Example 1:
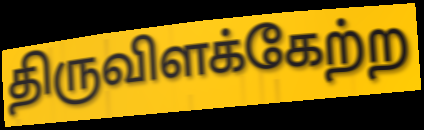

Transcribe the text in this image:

திருவிளக்கேற்ற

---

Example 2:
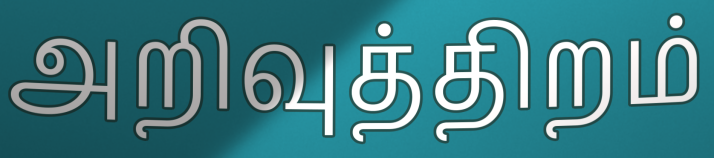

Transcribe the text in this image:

அறிவுத்திறம்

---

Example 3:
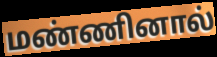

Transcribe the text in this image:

மண்ணினால்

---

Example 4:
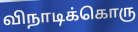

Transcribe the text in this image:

விநாடிக்கொரு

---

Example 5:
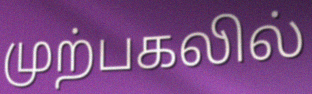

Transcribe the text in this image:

முற்பகலில்